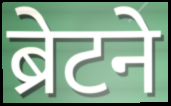
ब्रेटने